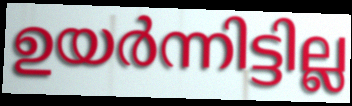
ഉയർന്നിട്ടില്ല